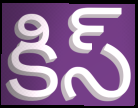
కిస్